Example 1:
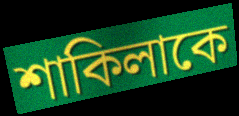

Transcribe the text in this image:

শাকিলাকে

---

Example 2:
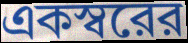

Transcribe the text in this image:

একস্বরের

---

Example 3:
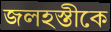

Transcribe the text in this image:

জলহস্তীকে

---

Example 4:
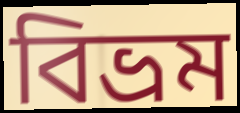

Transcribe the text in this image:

বিভ্রম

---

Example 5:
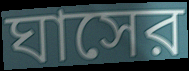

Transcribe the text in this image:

ঘাসের